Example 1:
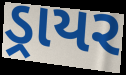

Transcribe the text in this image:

ડ્રાયર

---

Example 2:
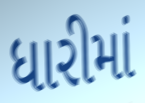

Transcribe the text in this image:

ધારીમાં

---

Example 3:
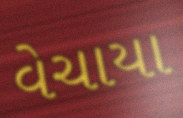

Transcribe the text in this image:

વેચાયા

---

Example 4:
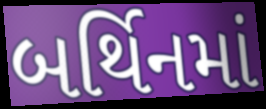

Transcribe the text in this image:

બર્થિનમાં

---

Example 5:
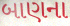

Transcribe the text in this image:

બાણના